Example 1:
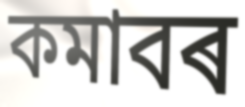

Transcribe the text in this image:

কমাবৰ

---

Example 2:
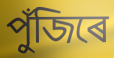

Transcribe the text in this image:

পুঁজিৰে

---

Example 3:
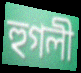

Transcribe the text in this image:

হুগলী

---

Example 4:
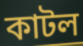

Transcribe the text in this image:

কাটল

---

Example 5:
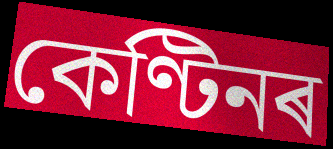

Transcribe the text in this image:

কেণ্টিনৰ